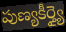
పుణ్యకీర్త్యై